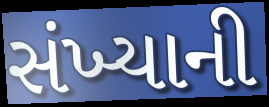
સંખ્યાની